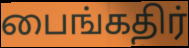
பைங்கதிர்